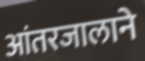
आंतरजालाने